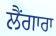
ਲੈਂਗਾਰਾ